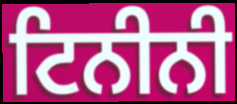
ਟਿਨੀਨੀ